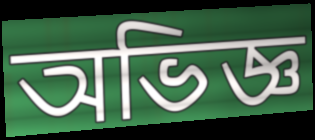
অভিজ্ঞ